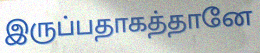
இருப்பதாகத்தானே